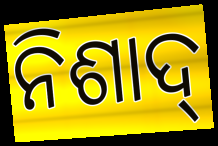
ନିଶାଦ୍